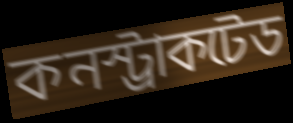
কনস্ট্রাকটেড